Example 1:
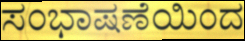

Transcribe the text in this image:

ಸಂಭಾಷಣೆಯಿಂದ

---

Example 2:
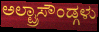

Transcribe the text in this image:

ಅಲ್ಟ್ರಾಸೌಂಡ್ಗಳು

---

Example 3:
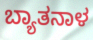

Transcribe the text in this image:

ಬ್ಯಾತನಾಳ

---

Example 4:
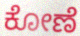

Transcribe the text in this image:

ಕೋಣೆ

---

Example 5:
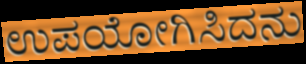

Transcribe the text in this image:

ಉಪಯೋಗಿಸಿದನು